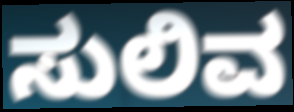
ಸುಲಿವ